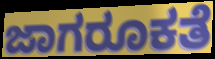
ಜಾಗರೂಕತೆ